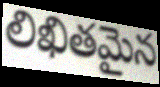
లిఖితమైన